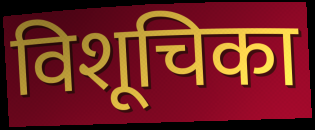
विशूचिका